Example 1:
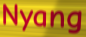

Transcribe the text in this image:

Nyang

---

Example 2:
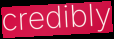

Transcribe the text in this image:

credibly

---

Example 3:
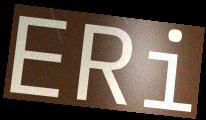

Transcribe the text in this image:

ERi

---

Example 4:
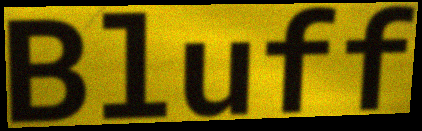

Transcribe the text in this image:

Bluff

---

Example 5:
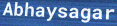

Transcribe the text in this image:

Abhaysagar